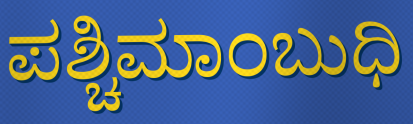
ಪಶ್ಚಿಮಾಂಬುಧಿ